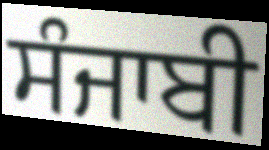
ਸੰਜਾਬੀ